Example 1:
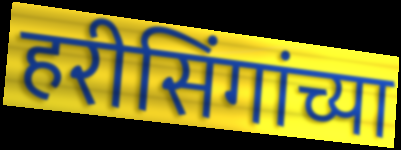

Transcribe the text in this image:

हरीसिंगांच्या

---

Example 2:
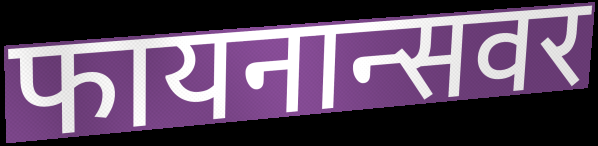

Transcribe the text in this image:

फायनान्सवर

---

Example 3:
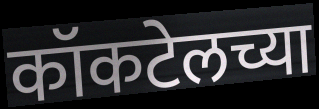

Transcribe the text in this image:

कॉकटेलच्या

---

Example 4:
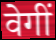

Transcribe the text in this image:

वेगीं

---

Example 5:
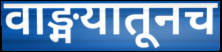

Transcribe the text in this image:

वाङ्मयातूनच